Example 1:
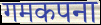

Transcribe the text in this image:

गमकपना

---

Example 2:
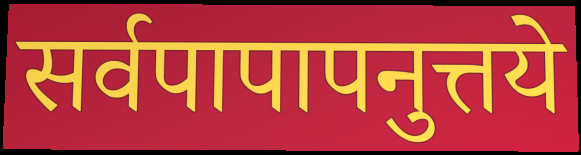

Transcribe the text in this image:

सर्वपापापनुत्तये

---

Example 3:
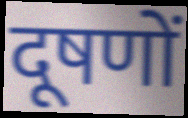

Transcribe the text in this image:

दूषणों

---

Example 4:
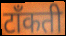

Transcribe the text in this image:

टाँकती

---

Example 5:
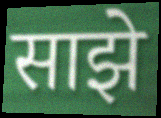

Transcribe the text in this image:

साझे